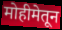
मोहीमेतून